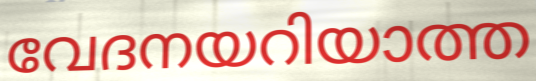
വേദനയറിയാത്ത